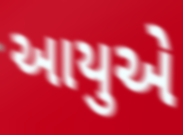
આયુએ